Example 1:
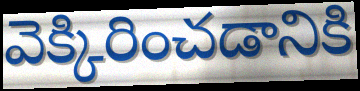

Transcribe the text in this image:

వెక్కిరించడానికి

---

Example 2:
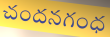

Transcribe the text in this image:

చందనగంధ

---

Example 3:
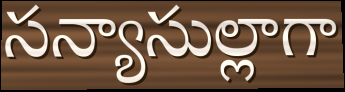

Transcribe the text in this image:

సన్యాసుల్లాగా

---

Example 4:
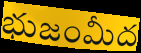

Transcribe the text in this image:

భుజంమీద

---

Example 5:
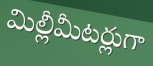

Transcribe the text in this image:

మిల్లీమీటర్లుగా